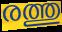
രത്തു